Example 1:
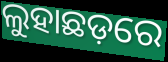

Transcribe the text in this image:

ଲୁହାଛଡ଼ରେ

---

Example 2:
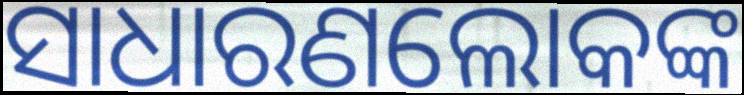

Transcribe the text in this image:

ସାଧାରଣଲୋକଙ୍କ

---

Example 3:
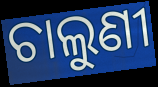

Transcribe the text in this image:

ଚାଲୁଣୀ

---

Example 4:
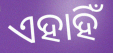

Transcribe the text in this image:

ଏହାହିଁ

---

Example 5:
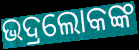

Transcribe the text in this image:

ଭଦ୍ରଲୋକଙ୍କ